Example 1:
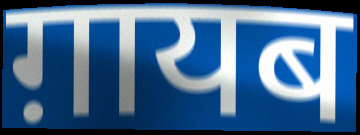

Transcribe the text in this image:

ग़ायब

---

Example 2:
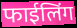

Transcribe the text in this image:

फाईलिंग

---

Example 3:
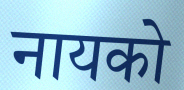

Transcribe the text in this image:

नायको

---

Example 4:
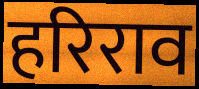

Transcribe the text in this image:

हरिराव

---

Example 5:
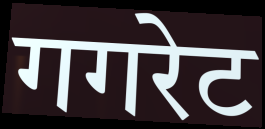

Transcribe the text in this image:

गगरेट